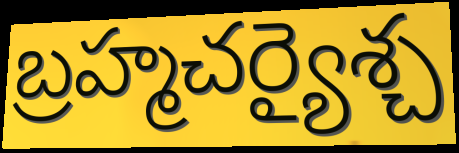
బ్రహ్మచర్యైశ్చ